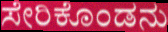
ಸೇರಿಕೊಂಡನು